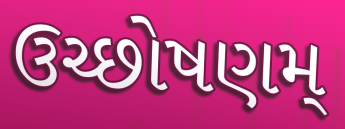
ઉચ્છોષણમ્